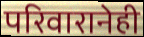
परिवारानेही